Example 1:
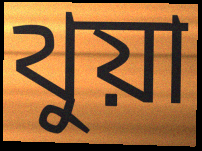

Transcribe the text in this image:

থুয়া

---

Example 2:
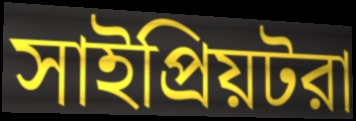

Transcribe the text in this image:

সাইপ্রিয়টরা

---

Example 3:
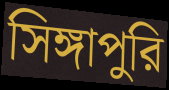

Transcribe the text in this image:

সিঙ্গাপুরি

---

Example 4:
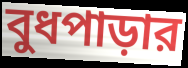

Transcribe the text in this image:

বুধপাড়ার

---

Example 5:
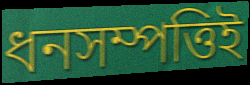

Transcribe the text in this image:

ধনসম্পত্তিই